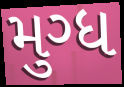
મુગ્ધ